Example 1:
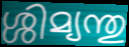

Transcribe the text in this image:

ശ്ശിമ്യന്തു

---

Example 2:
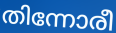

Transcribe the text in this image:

തിന്നോരീ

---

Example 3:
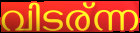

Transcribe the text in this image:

വിടര്ന്ന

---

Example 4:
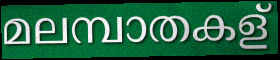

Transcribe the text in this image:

മലമ്പാതകള്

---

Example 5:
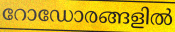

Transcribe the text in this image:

റോഡോരങ്ങളിൽ